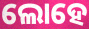
ଲୋହେ